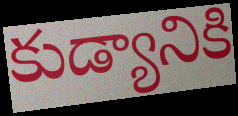
కుడ్యానికి